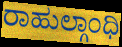
ರಾಹುಲ್ಗಾಂಧಿ